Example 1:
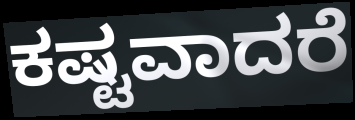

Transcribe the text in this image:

ಕಷ್ಟವಾದರೆ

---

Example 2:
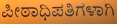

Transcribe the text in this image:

ಪೀಠಾಧಿಪತಿಗಳಾಗಿ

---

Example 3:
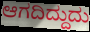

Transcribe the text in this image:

ಆಗದಿದ್ದುದು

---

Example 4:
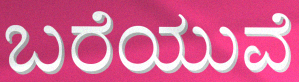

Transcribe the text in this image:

ಬರೆಯುವೆ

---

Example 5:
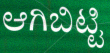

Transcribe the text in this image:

ಆಗಿಬಿಟ್ಟಿ